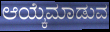
ಆಯ್ಕೆಮಾಡುವ